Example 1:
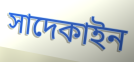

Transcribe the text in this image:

সাদেকাইন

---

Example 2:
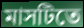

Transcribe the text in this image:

মাসটিতে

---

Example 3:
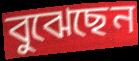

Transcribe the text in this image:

বুঝেছেন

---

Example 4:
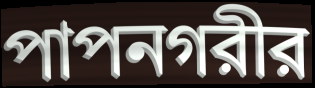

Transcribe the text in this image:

পাপনগরীর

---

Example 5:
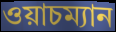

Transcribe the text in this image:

ওয়াচম্যান